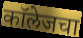
कॉलेजचा